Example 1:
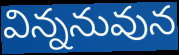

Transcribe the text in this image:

విన్ననువున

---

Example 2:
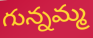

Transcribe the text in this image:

గున్నమ్మ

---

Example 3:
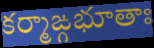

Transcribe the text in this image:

కర్మాఙ్గభూతాః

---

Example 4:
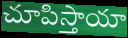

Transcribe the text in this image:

చూపిస్తాయా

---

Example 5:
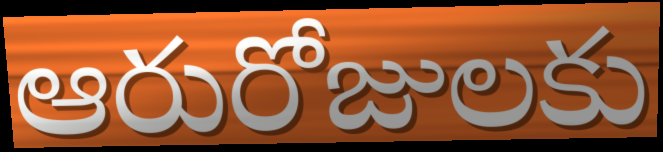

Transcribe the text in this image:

ఆరురోజులకు